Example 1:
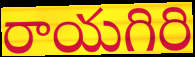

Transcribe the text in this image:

రాయగిరి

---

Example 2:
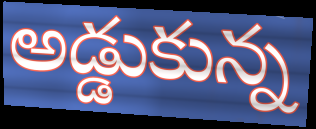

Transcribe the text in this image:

అడ్డుకున్న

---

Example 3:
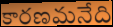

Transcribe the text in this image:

కారణమనేది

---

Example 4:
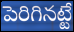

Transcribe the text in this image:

పెరిగినట్టే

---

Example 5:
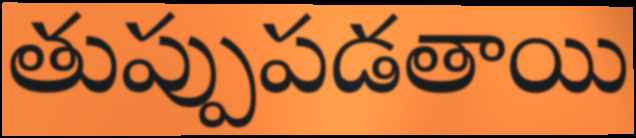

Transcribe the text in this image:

తుప్పుపడతాయి